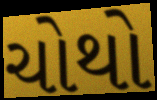
ચોથો